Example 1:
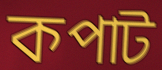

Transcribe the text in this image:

কপাট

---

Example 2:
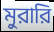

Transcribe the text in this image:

মুরারি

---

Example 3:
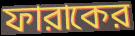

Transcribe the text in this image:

ফারাকের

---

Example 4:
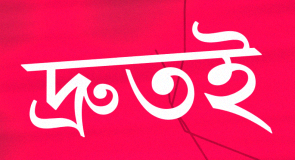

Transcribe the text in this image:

দ্রুতই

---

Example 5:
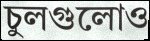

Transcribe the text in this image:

চুলগুলোও